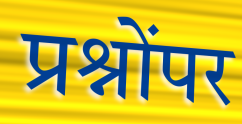
प्रश्नोंपर